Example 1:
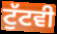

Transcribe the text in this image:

ਟੁੱਟਵੀ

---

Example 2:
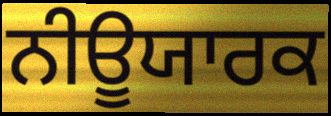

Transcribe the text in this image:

ਨੀਊਯਾਰਕ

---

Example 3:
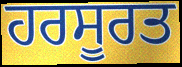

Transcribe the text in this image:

ਹਰਸੂਰਤ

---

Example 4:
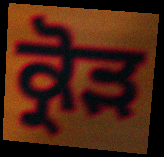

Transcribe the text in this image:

ਕ੍ਰੋੜ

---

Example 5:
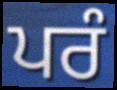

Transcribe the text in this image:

ਪਰੰ